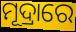
ମୂଦ୍ରାରେ